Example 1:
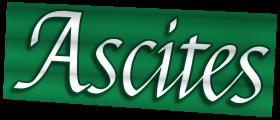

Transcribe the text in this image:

Ascites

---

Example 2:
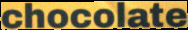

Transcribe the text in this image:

chocolate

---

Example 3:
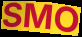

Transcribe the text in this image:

SMO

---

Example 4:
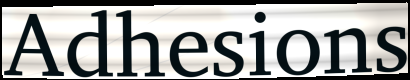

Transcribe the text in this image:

Adhesions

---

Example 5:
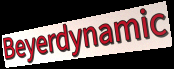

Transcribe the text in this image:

Beyerdynamic